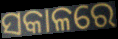
ସକାଳରେ